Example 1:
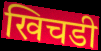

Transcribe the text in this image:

खिचडी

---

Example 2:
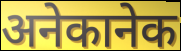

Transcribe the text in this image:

अनेकानेक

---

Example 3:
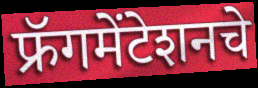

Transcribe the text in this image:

फ्रॅगमेंटेशनचे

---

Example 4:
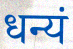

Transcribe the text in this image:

धन्यं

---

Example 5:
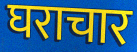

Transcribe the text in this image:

घराचार